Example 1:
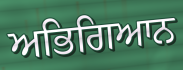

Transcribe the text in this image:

ਅਭਿਗਿਆਨ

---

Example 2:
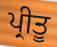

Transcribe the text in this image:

ਪ੍ਰੀਤੂ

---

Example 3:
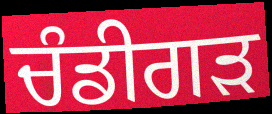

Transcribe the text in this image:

ਚੰਡੀਗਡ਼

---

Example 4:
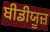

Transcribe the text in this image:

ਬੀਡੀਯੂਜ਼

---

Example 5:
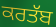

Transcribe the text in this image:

ਕਰਤੱਬ